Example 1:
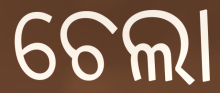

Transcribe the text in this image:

ଚେଲା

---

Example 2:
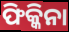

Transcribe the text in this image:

ଫିକ୍କିନା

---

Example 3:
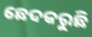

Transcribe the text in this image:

ଛେଦକରୁଛି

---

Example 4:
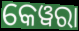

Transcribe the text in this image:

କେୱରା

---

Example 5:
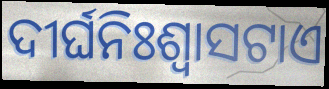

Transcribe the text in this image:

ଦୀର୍ଘନିଃଶ୍ୱାସଟାଏ